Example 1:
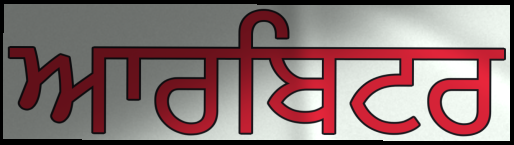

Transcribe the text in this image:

ਆਰਬਿਟਰ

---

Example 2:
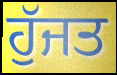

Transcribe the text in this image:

ਹੁੱਜਤ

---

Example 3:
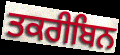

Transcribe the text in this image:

ਤਕਰੀਬਿਨ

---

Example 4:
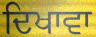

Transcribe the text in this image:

ਦਿਖਾਵਾ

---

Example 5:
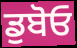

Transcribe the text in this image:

ਡੁਬੋਓ